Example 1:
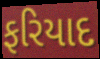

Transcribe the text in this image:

ફરિયાદ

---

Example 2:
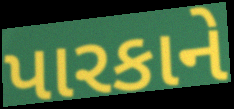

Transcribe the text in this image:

પારકાને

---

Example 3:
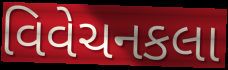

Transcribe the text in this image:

વિવેચનકલા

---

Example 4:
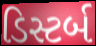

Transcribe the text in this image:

ડિસ્ટર્બ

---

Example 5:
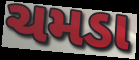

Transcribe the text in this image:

ચમડા